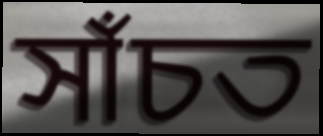
সাঁচত